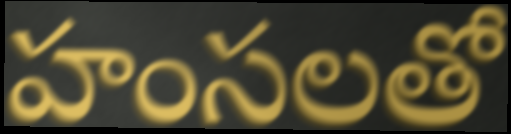
హంసలతో